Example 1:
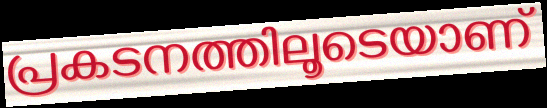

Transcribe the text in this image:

പ്രകടനത്തിലൂടെയാണ്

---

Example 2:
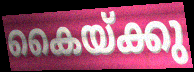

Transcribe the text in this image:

കൈയ്ക്കു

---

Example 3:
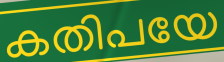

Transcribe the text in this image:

കതിപയേ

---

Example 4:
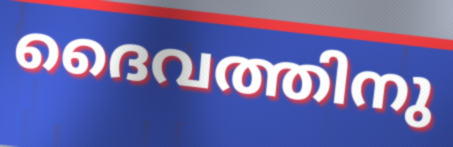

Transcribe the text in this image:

ദൈവത്തിനു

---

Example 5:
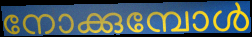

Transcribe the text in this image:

നോക്കുമ്പോൾ